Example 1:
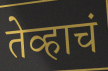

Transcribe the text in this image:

तेव्हाचं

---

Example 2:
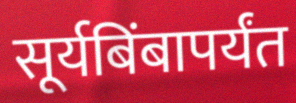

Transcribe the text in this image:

सूर्यबिंबापर्यंत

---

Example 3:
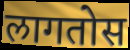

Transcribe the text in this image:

लागतोस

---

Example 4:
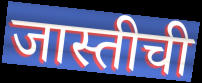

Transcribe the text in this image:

जास्तीची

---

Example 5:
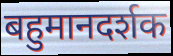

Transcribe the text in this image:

बहुमानदर्शक